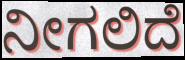
ನೀಗಲಿದೆ